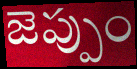
జెప్పుం